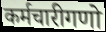
कर्मचारीगणो